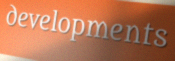
developments